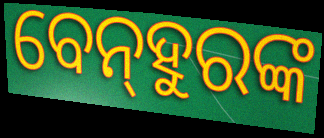
ବେନ୍‍ହୁରଙ୍କ